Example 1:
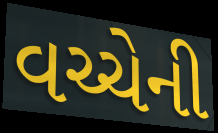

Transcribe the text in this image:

વચ્ચેની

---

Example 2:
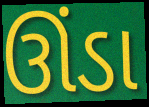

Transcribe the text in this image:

ઊંડા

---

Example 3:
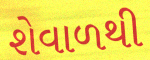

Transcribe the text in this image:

શેવાળથી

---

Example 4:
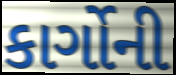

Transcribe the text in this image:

કાર્ગોની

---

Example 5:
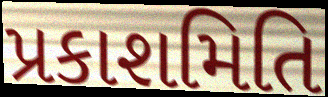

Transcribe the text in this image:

પ્રકાશમિતિ